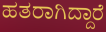
ಹತರಾಗಿದ್ದಾರೆ